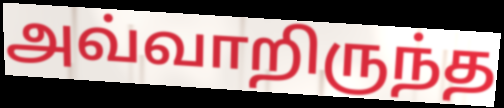
அவ்வாறிருந்த